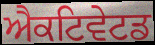
ਐਕਟਿਵੇਟਡ